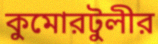
কুমোরটুলীর